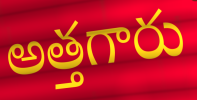
అత్తగారు